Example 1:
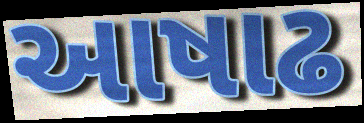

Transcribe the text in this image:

આષાઢ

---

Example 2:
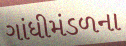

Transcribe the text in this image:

ગાંધીમંડળના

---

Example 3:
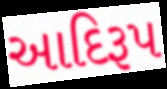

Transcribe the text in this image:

આદિરૂપ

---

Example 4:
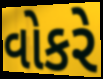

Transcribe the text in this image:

વોકરે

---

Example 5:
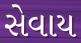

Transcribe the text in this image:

સેવાય